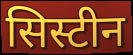
सिस्टीन